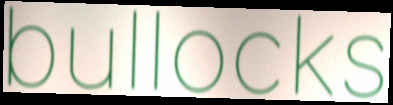
bullocks